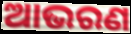
ଆଭରଣ